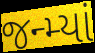
જન્મ્યાં